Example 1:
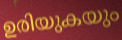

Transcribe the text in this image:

ഉരിയുകയും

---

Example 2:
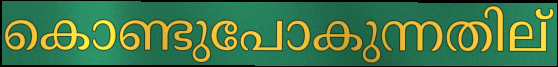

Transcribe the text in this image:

കൊണ്ടുപോകുന്നതില്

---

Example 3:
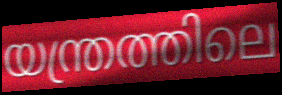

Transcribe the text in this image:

യന്ത്രത്തിലെ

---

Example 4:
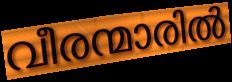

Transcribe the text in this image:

വീരന്മാരിൽ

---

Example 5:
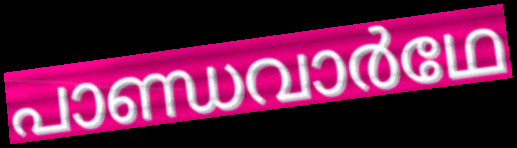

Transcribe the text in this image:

പാണ്ഡവാർഥേ